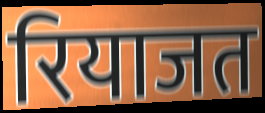
रियाजत